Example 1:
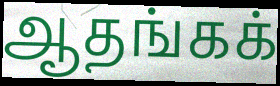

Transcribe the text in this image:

ஆதங்கக்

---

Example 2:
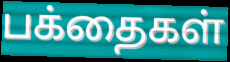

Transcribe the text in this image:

பக்தைகள்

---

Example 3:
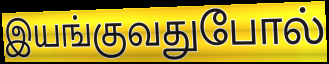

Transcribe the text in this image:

இயங்குவதுபோல்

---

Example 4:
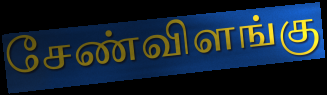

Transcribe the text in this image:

சேண்விளங்கு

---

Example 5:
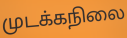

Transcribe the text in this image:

முடக்கநிலை